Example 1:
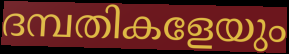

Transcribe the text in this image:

ദമ്പതികളേയും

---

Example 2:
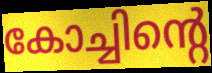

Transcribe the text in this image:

കോച്ചിന്റെ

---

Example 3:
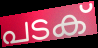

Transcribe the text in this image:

പടക്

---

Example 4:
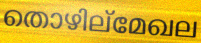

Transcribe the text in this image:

തൊഴില്മേഖല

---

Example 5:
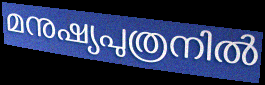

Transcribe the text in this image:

മനുഷ്യപുത്രനിൽ